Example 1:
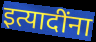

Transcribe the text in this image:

इत्यादींना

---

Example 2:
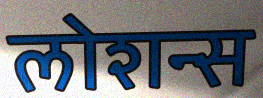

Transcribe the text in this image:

लोशन्स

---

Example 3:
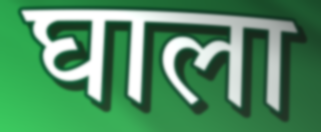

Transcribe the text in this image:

घाला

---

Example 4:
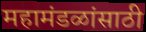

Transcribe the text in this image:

महामंडळांसाठी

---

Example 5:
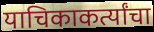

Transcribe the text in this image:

याचिकाकर्त्यांचा